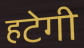
हटेगी